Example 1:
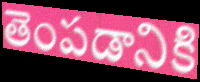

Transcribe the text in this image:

తెంపడానికి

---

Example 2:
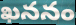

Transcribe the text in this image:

ఖననం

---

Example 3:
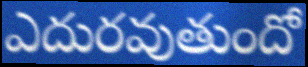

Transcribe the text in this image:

ఎదురవుతుందో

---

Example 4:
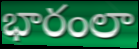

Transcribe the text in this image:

భారంలా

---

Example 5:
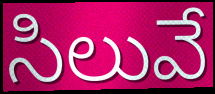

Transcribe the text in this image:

సిలువే